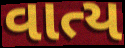
વાત્ય